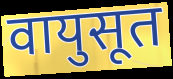
वायुसूत